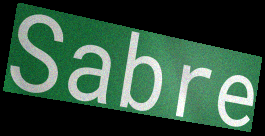
Sabre